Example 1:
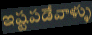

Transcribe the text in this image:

ఇష్టపడేవాళ్ళు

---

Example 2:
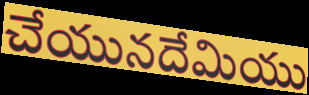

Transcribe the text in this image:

చేయునదేమియు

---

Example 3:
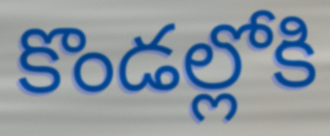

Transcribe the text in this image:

కొండల్లోకి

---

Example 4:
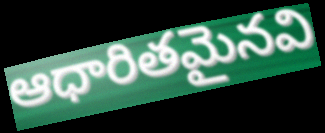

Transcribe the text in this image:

ఆధారితమైనవి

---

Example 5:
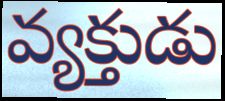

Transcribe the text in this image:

వ్యక్తుడు